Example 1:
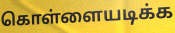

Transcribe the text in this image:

கொள்ளையடிக்க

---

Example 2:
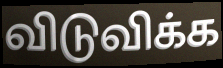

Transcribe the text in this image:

விடுவிக்க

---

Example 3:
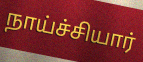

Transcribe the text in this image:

நாய்ச்சியார்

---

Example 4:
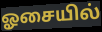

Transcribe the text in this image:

ஓசையில்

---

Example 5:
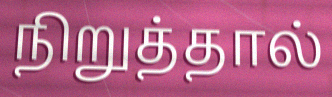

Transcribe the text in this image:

நிறுத்தால்